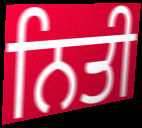
ਨਿਤੀ